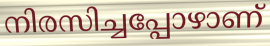
നിരസിച്ചപ്പോഴാണ്